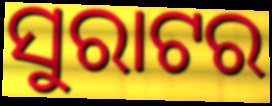
ସୁରାଟର